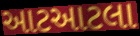
આટઆટલા